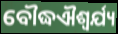
ବୌଦ୍ଧଐଶ୍ୱର୍ଯ୍ୟ